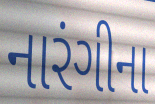
નારંગીના